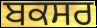
ਬਕਸਰ